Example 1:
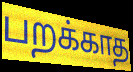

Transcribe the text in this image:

பறக்காத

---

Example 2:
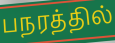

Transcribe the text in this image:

பநரத்தில்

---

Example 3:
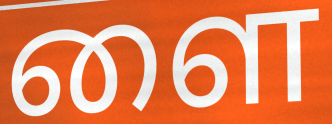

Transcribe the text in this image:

ளை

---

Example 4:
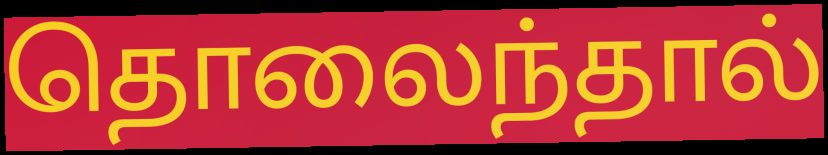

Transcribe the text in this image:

தொலைந்தால்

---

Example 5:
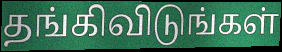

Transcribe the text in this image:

தங்கிவிடுங்கள்